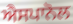
ਐਸਪਾਨੋਲ